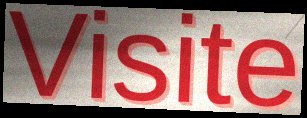
Visite